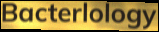
Bacterlology